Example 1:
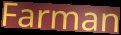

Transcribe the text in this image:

Farman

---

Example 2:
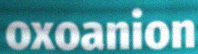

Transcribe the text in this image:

oxoanion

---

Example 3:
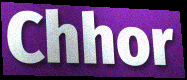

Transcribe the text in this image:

Chhor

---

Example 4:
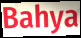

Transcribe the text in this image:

Bahya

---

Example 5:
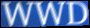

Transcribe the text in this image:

WWD